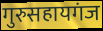
गुरुसहायगंज